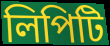
লিপিটি